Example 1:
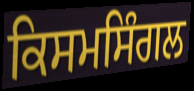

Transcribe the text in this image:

ਕਿਸਮਸਿੰਗਲ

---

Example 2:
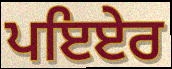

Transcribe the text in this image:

ਪਇਏਰ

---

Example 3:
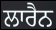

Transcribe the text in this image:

ਲਾਰੈਨ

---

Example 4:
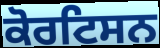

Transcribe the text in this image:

ਕੋਰਟਿਸਨ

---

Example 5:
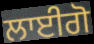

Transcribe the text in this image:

ਲਾਈਗੋ